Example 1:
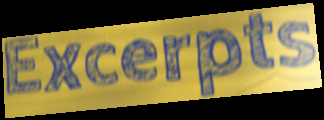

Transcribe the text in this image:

Excerpts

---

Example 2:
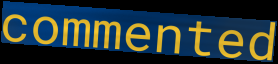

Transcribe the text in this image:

commented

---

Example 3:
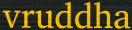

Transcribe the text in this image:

vruddha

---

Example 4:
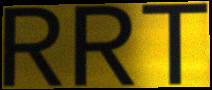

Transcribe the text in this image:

RRT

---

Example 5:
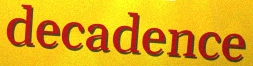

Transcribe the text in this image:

decadence